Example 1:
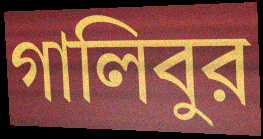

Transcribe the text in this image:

গালিবুর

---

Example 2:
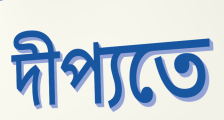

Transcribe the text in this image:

দীপ্যতে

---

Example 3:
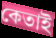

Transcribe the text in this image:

কেতাই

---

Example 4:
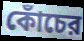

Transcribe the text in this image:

কোঁচের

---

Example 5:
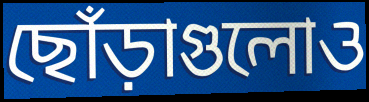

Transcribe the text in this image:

ছোঁড়াগুলোও